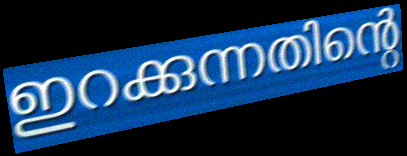
ഇറക്കുന്നതിന്റെ